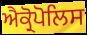
ਐਕ੍ਰੋਪੋਲਿਸ